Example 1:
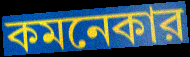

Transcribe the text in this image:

কমনেকার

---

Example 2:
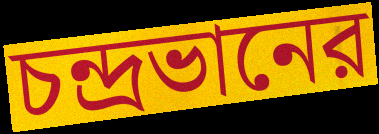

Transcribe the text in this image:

চন্দ্রভানের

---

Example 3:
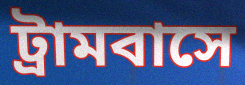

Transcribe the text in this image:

ট্রামবাসে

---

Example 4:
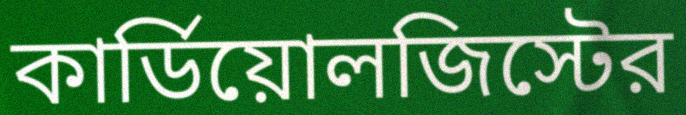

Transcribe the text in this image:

কার্ডিয়োলজিস্টের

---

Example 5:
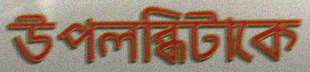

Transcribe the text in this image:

উপলব্ধিটাকে